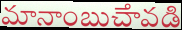
మానాంబుౘావడి